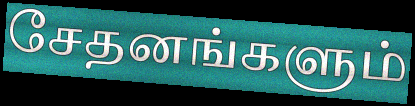
சேதனங்களும்